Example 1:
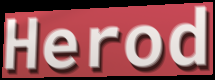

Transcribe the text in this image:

Herod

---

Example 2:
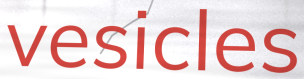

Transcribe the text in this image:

vesicles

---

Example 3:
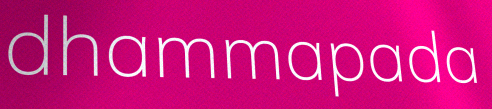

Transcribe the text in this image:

dhammapada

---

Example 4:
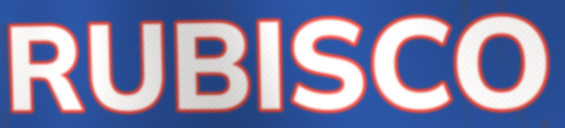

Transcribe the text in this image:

RUBISCO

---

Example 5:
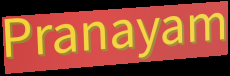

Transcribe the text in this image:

Pranayam